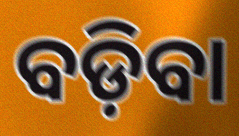
ବଡ଼ିବା